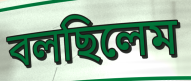
বলছিলেম